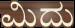
ಮಿದು